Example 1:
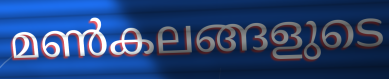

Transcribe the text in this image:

മൺകലങ്ങളുടെ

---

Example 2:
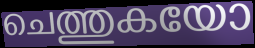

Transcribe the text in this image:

ചെത്തുകയോ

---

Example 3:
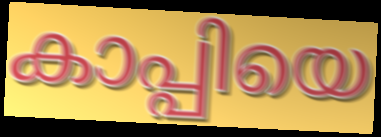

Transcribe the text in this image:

കാപ്പിയെ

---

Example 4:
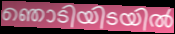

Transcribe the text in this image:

ഞൊടിയിടയിൽ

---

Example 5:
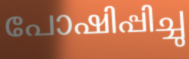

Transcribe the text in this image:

പോഷിപ്പിച്ചു